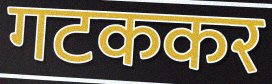
गटककर